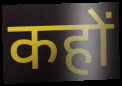
कहों